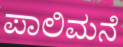
ಪಾಲಿಮನೆ